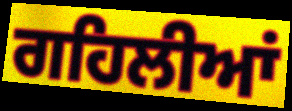
ਗਹਿਲੀਆਂ